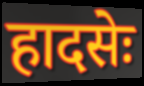
हादसेः